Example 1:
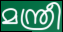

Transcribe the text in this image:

മന്ത്രീ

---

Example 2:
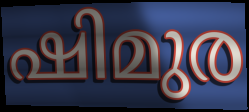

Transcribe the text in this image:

ഷിമുര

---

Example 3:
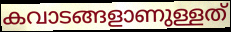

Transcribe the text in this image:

കവാടങ്ങളാണുള്ളത്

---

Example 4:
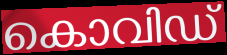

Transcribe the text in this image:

കൊവിഡ്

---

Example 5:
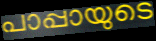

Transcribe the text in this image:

പാപ്പായുടെ